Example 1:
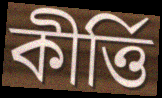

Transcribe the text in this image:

কীৰ্ত্তি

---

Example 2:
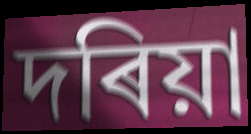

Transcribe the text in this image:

দৰিয়া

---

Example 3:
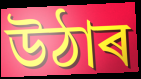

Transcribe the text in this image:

উঠাৰ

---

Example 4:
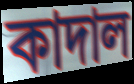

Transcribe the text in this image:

কাদাল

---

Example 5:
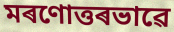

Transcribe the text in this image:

মৰণোত্তৰভাৱে